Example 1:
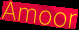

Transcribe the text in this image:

Amoor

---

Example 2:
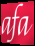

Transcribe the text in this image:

afa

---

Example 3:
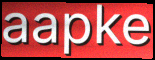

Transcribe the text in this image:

aapke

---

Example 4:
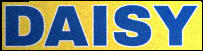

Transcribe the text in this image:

DAISY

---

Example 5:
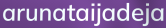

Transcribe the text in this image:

arunataijadeja